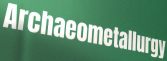
Archaeometallurgy